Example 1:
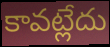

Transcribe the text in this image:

కావట్లేదు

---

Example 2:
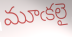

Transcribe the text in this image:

మూఁకలై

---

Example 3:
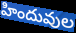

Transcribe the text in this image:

హిందువుల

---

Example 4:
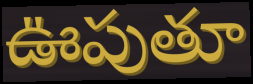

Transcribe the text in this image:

ఊపుతూ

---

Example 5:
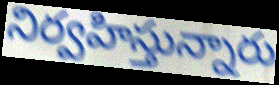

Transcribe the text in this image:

నిర్వహిస్తున్నారు